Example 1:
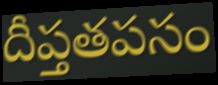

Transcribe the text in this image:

దీప్తతపసం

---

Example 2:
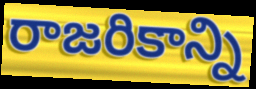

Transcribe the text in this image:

రాజరికాన్ని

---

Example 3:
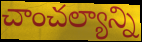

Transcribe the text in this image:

చాంచల్యాన్ని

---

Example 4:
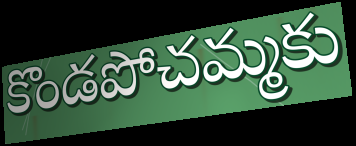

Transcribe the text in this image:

కొండపోచమ్మకు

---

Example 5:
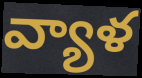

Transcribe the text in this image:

వ్యాళ